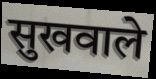
सुखवाले